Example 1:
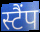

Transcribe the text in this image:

स्टैंप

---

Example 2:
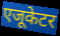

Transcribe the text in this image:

एजूकेटर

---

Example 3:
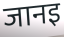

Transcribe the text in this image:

जानइ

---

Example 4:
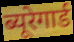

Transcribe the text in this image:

ब्यूरेगार्ड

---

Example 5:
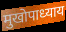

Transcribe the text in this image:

मुखोपाध्‍याय